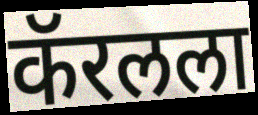
कॅरलला